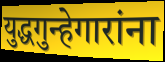
युद्धगुन्हेगारांना